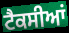
ਟੈਕਸੀਆਂ